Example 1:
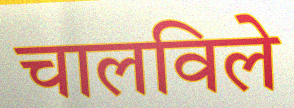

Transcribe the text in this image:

चालविले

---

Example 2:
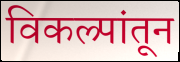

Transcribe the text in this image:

विकल्पांतून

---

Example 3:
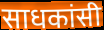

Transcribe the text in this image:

साधकांसी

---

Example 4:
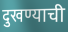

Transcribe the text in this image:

दुखण्याची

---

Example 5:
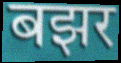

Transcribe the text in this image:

बझर